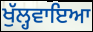
ਖੁੱਲ੍ਹਵਾਇਆ